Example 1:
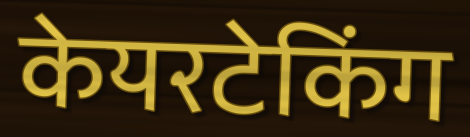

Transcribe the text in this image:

केयरटेकिंग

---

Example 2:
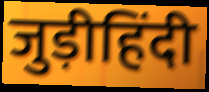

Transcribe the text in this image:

जुड़ीहिंदी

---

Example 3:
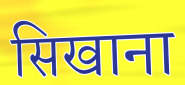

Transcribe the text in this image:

सिखाना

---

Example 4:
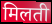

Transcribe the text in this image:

मिलती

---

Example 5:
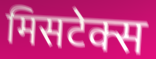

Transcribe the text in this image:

मिसटेक्स